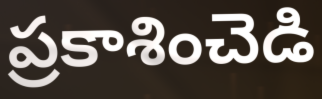
ప్రకాశించెడి